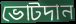
ভোটদান